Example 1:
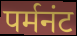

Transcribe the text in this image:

पर्मनंट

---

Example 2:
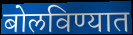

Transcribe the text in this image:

बोलविण्यात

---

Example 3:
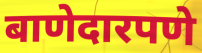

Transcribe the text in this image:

बाणेदारपणे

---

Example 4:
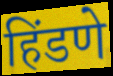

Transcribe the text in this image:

हिंडणे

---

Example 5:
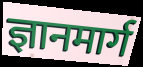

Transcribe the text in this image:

ज्ञानमार्ग